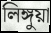
লিঙ্গুয়া